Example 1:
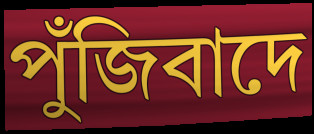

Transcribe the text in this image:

পুঁজিবাদে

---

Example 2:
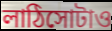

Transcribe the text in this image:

লাঠিসোটাও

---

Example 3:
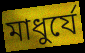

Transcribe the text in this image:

মাধুর্যে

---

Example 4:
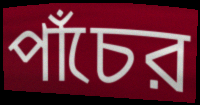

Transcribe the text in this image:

পাঁচের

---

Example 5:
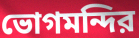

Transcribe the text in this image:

ভোগমন্দির